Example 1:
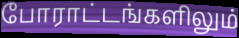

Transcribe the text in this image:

போராட்டங்களிலும்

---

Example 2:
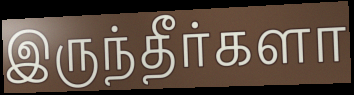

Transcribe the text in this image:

இருந்தீர்களா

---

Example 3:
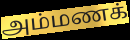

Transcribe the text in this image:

அம்மணக்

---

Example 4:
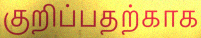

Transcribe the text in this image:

குறிப்பதற்காக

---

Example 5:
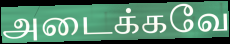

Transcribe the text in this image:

அடைக்கவே